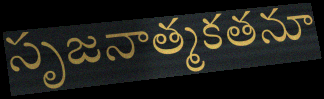
సృజనాత్మకతనూ